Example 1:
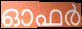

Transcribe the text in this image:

ഓഫർ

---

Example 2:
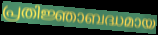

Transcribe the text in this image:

പ്രതിജ്ഞാബദ്ധമായ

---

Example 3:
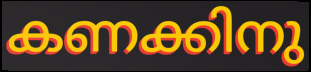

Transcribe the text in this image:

കണക്കിനു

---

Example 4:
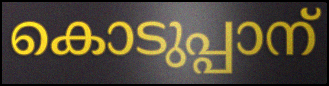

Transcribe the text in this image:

കൊടുപ്പാന്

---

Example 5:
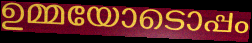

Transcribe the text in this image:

ഉമ്മയോടൊപ്പം